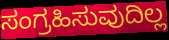
ಸಂಗ್ರಹಿಸುವುದಿಲ್ಲ